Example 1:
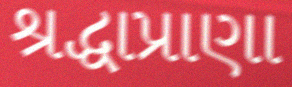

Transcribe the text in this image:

શ્રદ્ધાપ્રાણા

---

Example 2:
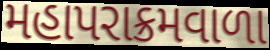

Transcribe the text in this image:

મહાપરાક્રમવાળા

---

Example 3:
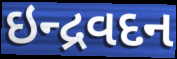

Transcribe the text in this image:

ઇન્દ્રવદન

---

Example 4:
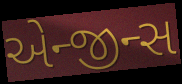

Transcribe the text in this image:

એન્જીન્સ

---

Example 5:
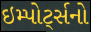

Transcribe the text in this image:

ઇમ્પોર્ટ્સનો